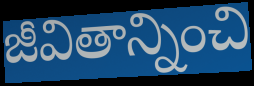
జీవితాన్నించి